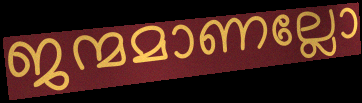
ജന്മമാണല്ലോ